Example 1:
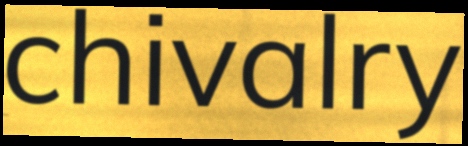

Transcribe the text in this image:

chivalry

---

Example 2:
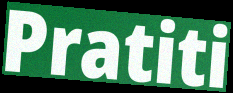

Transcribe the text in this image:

Pratiti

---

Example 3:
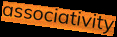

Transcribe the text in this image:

associativity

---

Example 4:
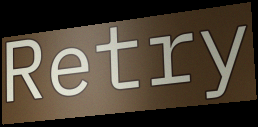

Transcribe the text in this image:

Retry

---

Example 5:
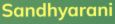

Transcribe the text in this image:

Sandhyarani